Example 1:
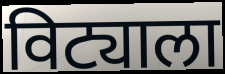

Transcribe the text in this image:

विट्याला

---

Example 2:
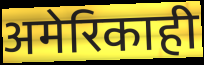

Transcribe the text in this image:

अमेरिकाही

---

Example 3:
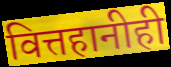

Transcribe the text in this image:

वित्तहानीही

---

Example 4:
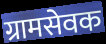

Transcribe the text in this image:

ग्रामसेवक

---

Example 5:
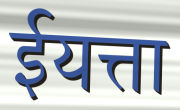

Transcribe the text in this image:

ईयत्ता